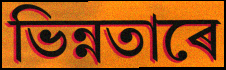
ভিন্নতাৰে